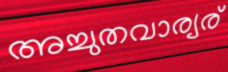
അച്ചുതവാര്യര്